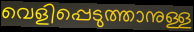
വെളിപ്പെടുത്താനുള്ള